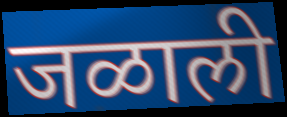
जळाली